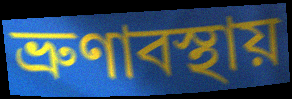
ভ্রুণাবস্থায়